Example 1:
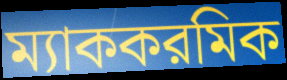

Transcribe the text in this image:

ম্যাককরমিক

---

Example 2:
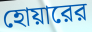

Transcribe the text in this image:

হোয়ারের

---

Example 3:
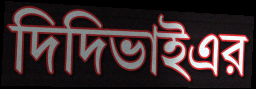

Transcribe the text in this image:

দিদিভাইএর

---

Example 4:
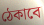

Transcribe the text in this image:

ঠেকাবে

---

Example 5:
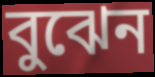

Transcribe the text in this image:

বুঝেন